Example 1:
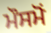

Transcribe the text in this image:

ਮੌਸਮੋਂ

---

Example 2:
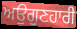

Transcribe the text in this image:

ਅਉਗੁਣਹਾਰੀ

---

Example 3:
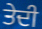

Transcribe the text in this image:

ਤੇਦੀ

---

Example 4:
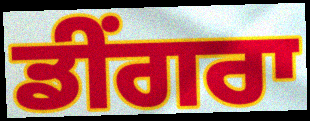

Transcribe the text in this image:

ਡੀਂਗਰਾ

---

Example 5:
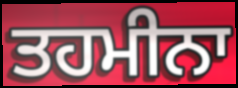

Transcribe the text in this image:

ਤਹਮੀਨਾ